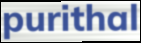
purithal